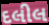
દલીલ